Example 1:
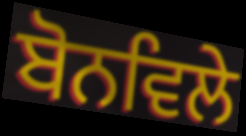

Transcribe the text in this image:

ਬੋਨਵਿਲੇ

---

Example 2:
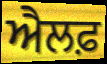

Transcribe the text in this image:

ਐਲਫ਼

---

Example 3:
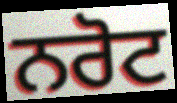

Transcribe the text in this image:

ਨਰੋਟ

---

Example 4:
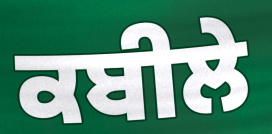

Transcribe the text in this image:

ਕਬੀਲੇ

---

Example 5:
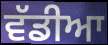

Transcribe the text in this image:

ਵੱਡੀਆ